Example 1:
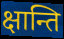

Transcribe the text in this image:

क्षान्ति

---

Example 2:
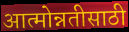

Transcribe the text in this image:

आत्मोन्नतीसाठी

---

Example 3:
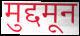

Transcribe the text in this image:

मुद्दमून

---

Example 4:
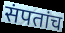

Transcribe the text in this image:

संपतांच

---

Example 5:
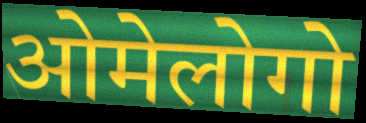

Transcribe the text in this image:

ओमेलोगो